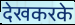
देखकरके